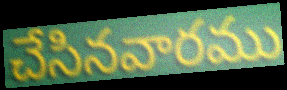
చేసినవారము